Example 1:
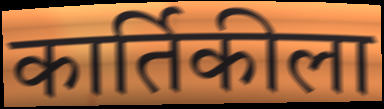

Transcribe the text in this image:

कार्तिकीला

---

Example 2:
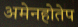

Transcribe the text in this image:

अमेनहोतेप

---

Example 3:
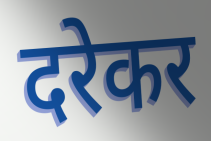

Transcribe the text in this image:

दरेकर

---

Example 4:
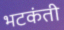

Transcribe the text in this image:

भटकंती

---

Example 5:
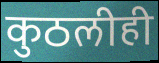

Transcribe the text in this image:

कुठलीही